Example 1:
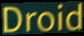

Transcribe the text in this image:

Droid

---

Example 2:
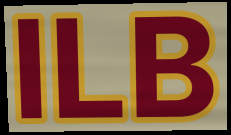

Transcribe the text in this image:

ILB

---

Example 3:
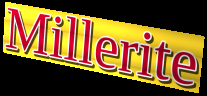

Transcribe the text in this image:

Millerite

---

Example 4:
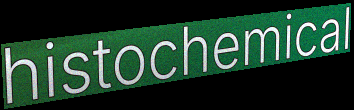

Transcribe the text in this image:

histochemical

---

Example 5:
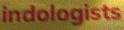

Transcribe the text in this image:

indologists